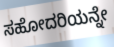
ಸಹೋದರಿಯನ್ನೇ